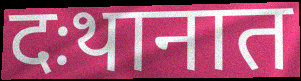
दःथानात